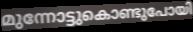
മുന്നോട്ടുകൊണ്ടുപോയി